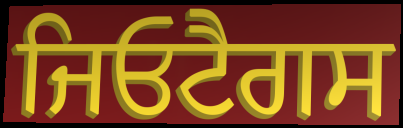
ਜਿਓਟੈਗਸ